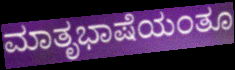
ಮಾತೃಭಾಷೆಯಂತೂ